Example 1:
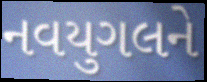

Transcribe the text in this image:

નવયુગલને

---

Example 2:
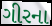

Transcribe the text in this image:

ગીરના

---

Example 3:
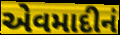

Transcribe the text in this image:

એવમાદીનં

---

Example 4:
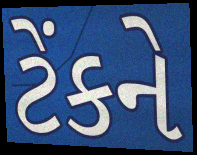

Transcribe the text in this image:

ટેંકને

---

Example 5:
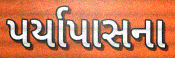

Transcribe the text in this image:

પર્યાપાસના